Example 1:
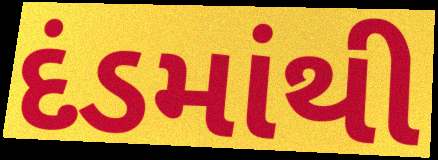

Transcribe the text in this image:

દંડમાંથી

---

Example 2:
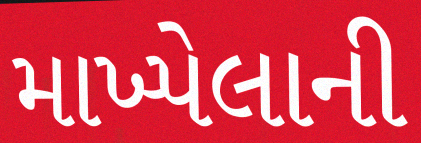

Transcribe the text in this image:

માખ્પેલાની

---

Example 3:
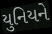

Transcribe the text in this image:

યુનિયને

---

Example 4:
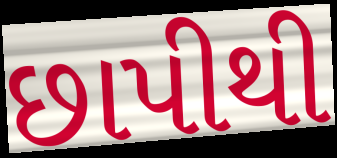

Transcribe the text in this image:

છાપીથી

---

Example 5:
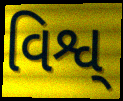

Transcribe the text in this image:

વિશ્વ્